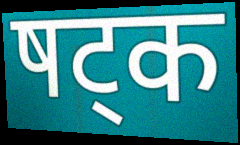
षट्क